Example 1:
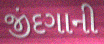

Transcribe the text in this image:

જીંદગાની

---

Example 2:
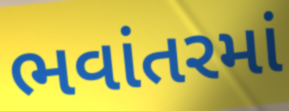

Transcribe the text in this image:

ભવાંતરમાં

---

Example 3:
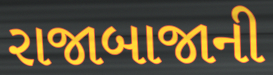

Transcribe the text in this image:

રાજાબાજાની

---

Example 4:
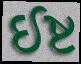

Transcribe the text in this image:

ઈષ્ટ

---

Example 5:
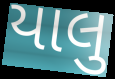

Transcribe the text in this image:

યાલુ